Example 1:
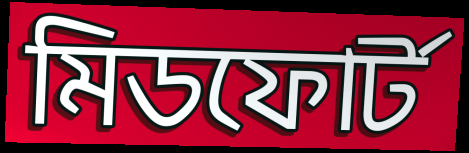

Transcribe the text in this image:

মিডফোর্ট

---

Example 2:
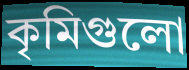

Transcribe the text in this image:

কৃমিগুলো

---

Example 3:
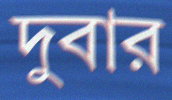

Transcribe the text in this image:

দুবার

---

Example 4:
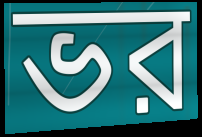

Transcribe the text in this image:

ভর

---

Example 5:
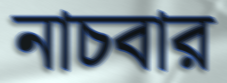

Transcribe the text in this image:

নাচবার